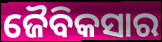
ଜୈବିକସାର